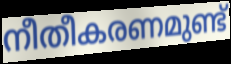
നീതീകരണമുണ്ട്